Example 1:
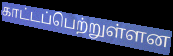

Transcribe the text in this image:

காட்டப்பெற்றுள்ளன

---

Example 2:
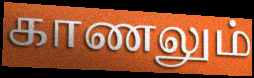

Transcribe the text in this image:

காணலும்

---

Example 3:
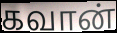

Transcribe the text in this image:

கவான்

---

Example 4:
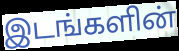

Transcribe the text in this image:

இடங்களின்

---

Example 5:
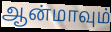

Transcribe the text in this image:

ஆன்மாவும்